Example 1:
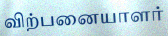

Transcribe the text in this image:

விற்பனையாளர்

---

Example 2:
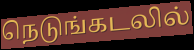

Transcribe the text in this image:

நெடுங்கடலில்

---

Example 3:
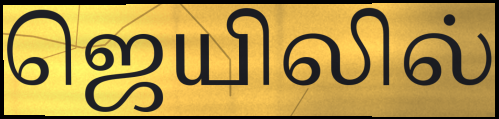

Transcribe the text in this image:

ஜெயிலில்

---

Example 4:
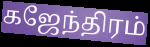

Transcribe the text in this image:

கஜேந்திரம்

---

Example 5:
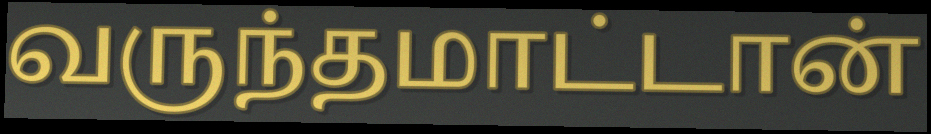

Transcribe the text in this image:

வருந்தமாட்டான்